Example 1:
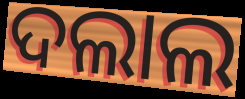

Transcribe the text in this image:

ଦଲାଲ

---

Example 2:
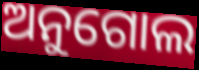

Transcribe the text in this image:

ଅନୁଗୋଲ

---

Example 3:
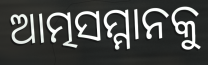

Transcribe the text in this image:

ଆତ୍ମସମ୍ମାନକୁ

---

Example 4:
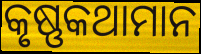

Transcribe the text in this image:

କୃଷ୍ଣକଥାମାନ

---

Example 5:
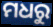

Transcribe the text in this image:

ମଧରୁ